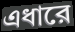
এধারে